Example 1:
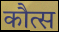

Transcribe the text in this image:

कौत्स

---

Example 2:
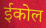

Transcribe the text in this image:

ईकोल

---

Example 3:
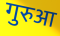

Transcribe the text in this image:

गुरुआ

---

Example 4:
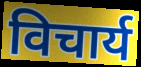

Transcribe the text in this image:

विचार्य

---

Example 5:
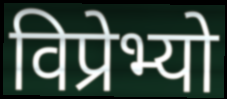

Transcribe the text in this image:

विप्रेभ्यो